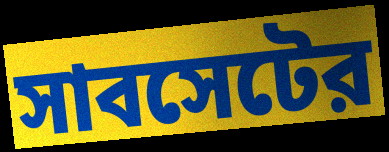
সাবসেটের